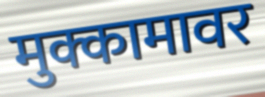
मुक्कामावर